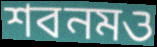
শবনমও